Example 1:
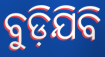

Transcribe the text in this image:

ବୁଡ଼ିଯିବି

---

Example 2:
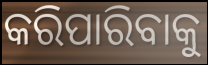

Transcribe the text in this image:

କରିପାରିବାକୁ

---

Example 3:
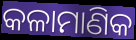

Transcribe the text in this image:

କଳାମାଣିକ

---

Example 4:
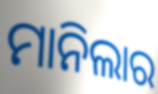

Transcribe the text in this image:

ମାନିଲାର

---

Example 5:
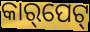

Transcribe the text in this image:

କାର୍‌ପେଟ୍